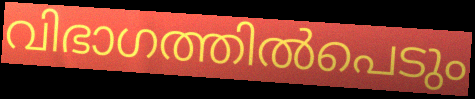
വിഭാഗത്തിൽപെടും